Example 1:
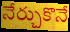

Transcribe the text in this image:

నేర్చుకొనే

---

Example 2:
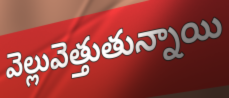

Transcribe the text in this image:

వెల్లువెత్తుతున్నాయి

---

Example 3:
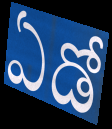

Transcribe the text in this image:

ఏడో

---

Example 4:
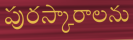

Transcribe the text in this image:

పురస్కారాలను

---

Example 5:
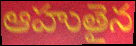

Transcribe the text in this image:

ఆహుతైన